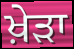
ਖ਼ੇੜਾ